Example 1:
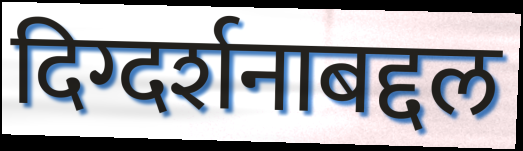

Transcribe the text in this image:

दिग्दर्शनाबद्दल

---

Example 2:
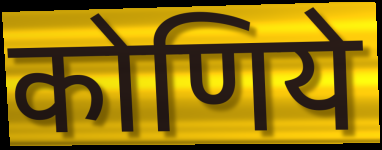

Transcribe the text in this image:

कोणिये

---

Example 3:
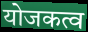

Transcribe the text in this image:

योजकत्व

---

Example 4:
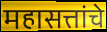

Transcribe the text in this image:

महासत्तांचे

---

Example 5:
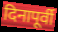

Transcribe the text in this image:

दिनापूर्वी